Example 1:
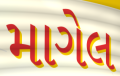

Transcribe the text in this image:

માગેલ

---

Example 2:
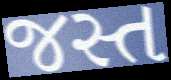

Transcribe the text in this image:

જસ્ત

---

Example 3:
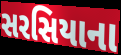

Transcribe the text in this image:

સરસિયાના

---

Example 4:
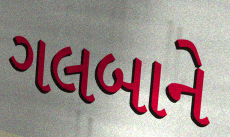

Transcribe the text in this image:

ગલબાને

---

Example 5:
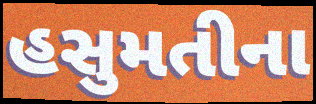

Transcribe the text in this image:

હસુમતીના